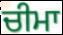
ਚੀਮਾ